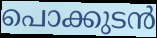
പൊക്കുടൻ